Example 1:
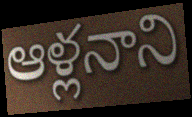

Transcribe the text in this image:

ఆళ్లనాని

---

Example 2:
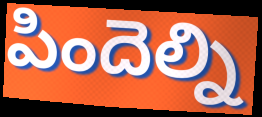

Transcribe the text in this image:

పిందెల్ని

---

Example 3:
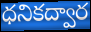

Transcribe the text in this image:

ధనికద్వార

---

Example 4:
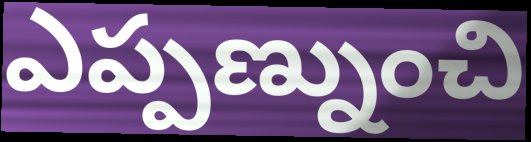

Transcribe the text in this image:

ఎప్పణ్నుంచి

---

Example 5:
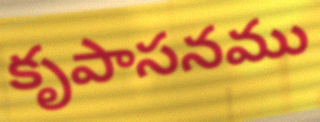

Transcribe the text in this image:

కృపాసనము